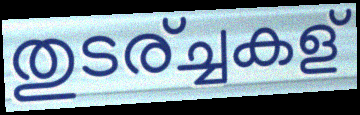
തുടര്ച്ചകള്